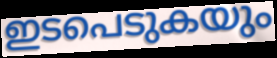
ഇടപെടുകയും